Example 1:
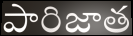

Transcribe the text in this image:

పారిజాత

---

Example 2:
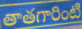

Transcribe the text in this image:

తాతగారింటి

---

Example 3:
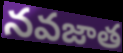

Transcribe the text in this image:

నవజాత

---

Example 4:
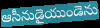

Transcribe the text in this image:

ఆసీనుడైయుండెను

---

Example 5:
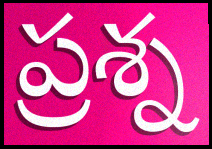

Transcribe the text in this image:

ప్రశ్న